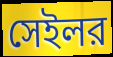
সেইলর